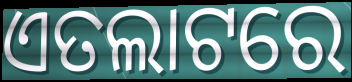
ଏତଲାଟରେ